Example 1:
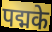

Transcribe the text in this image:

पद्मके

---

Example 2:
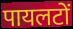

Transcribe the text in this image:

पायलटों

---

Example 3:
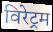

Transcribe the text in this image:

विरेट्रम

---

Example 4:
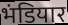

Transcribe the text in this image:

भंडियार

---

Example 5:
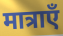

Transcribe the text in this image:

मात्राएँ